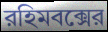
রহিমবক্সের